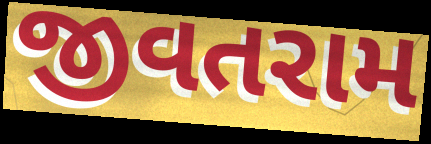
જીવતરામ